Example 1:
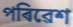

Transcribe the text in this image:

পৰিৱেশ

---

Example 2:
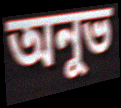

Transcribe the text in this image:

অনুভ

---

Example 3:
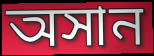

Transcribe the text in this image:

অসান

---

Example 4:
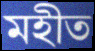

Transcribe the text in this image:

মহীত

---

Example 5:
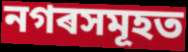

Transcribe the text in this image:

নগৰসমূহত